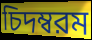
চিদম্বরম